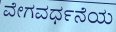
ವೇಗವರ್ಧನೆಯ